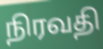
நிரவதி